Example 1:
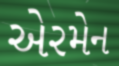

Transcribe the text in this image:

એરમેન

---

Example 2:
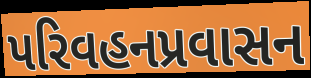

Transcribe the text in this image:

પરિવહનપ્રવાસન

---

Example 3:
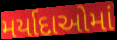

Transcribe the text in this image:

મર્યાદાઓમાં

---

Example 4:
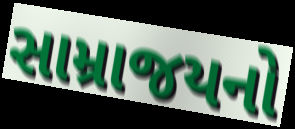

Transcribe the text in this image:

સામ્રાજયનો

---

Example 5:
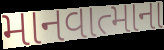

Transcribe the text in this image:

માનવાત્માના